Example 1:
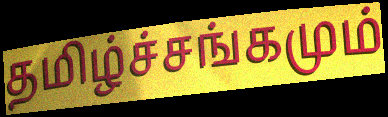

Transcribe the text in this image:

தமிழ்ச்சங்கமும்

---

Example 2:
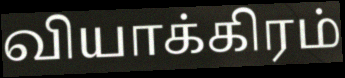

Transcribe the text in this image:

வியாக்கிரம்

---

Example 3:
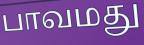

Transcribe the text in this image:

பாவமது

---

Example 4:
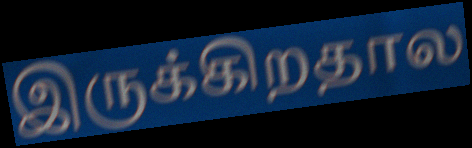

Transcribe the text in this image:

இருக்கிறதால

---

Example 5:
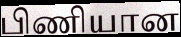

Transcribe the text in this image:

பிணியான